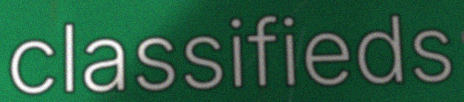
classifieds